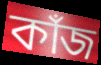
কাঁজ